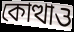
কোত্থাও